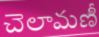
చెలామణీ